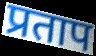
प्रताप